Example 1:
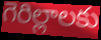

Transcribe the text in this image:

గెరిల్లాలకు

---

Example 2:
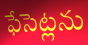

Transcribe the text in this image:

ఫేసెట్లను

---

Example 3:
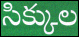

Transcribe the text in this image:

సిక్కుల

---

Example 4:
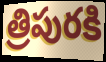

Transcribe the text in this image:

త్రిపురకి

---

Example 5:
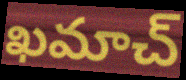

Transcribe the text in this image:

ఖమాచ్